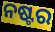
ନଷ୍ଟର